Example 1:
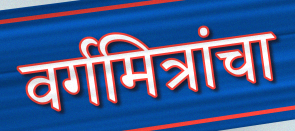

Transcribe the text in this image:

वर्गमित्रांचा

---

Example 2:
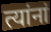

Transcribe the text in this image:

त्यांनां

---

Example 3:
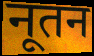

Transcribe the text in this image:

नूतन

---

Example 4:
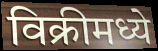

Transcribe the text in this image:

विक्रीमध्ये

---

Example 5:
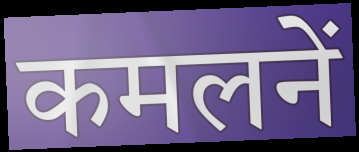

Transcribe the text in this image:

कमलनें